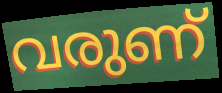
വരുണ്